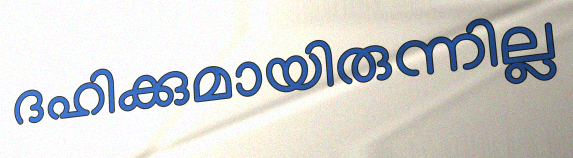
ദഹിക്കുമായിരുന്നില്ല